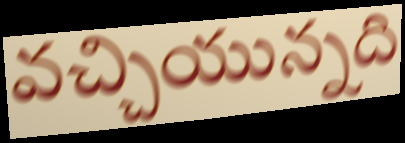
వచ్చియున్నది